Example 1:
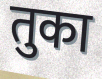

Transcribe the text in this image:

तुका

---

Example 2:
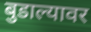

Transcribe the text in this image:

बुडाल्यावर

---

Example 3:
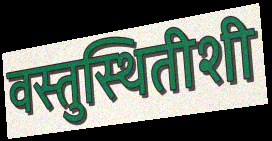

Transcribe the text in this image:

वस्तुस्थितीशी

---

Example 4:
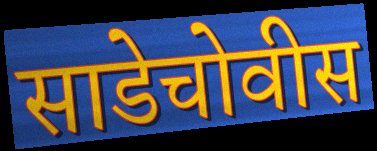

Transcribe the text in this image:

साडेचोवीस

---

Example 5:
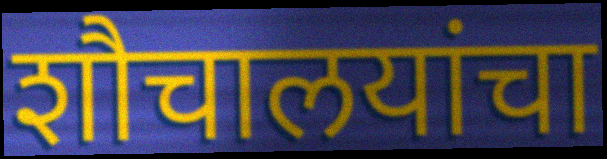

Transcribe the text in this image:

शौचालयांचा